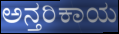
ಅನ್ತರಿಕಾಯ